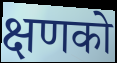
क्षणको